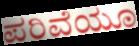
ಪರಿವೆಯೂ